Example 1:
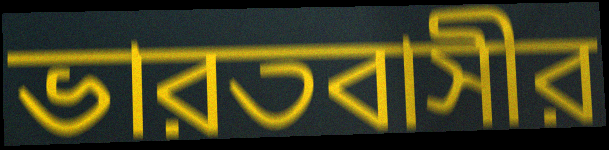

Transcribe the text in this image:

ভারতবাসীর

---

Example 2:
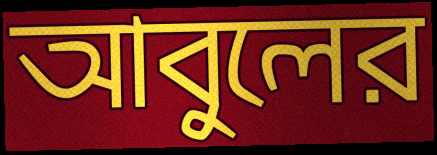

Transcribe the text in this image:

আবুলের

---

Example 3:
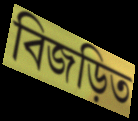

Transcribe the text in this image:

বিজড়িত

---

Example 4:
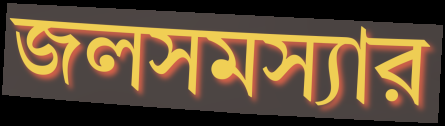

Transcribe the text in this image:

জলসমস্যার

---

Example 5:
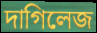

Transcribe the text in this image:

দাগিলেজ